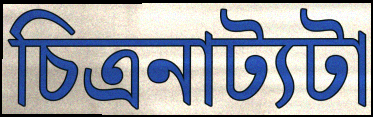
চিত্রনাট্যটা